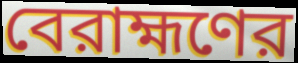
বেরাহ্মণের